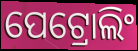
ପେଟ୍ରୋଲିଂ